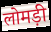
लोमड़ी